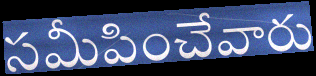
సమీపించేవారు